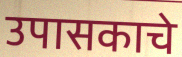
उपासकाचे